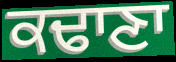
ਕਢਾਣਾ